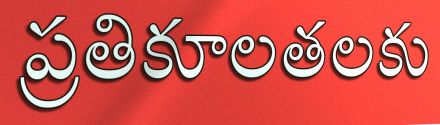
ప్రతికూలతలకు